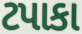
ટપાકા